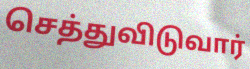
செத்துவிடுவார்